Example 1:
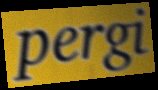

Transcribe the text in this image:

pergi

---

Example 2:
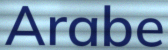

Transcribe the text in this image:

Arabe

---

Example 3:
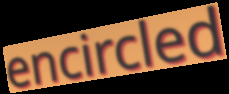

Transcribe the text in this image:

encircled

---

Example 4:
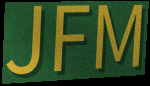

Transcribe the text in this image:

JFM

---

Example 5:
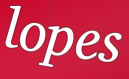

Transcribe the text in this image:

lopes